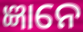
ଜ୍ଞାନେ